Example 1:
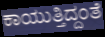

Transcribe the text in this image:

ಕಾಯುತ್ತಿದ್ದಂತೆ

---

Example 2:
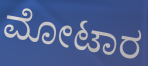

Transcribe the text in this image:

ಮೋಟಾರ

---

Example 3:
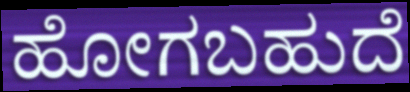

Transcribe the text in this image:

ಹೋಗಬಹುದೆ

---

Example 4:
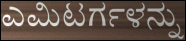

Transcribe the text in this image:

ಎಮಿಟರ್ಗಳನ್ನು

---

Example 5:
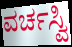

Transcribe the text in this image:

ವರ್ಚಸ್ವಿ